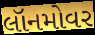
લૉનમોવર